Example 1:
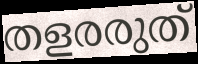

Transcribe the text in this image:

തളരരുത്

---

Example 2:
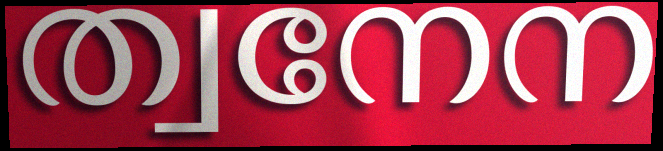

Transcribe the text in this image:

ത്വനേന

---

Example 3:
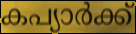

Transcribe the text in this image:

കപ്യാർക്ക്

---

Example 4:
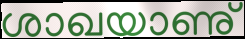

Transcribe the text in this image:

ശാഖയാണു്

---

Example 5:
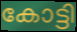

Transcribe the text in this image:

കോട്ടി